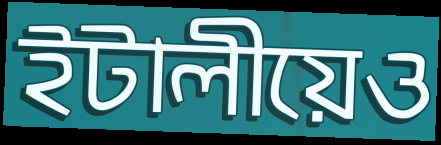
ইটালীয়েও